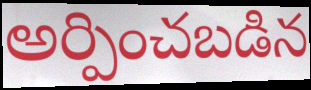
అర్పించబడిన